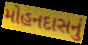
મોહનદાસનું